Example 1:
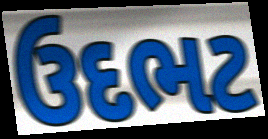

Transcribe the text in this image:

ઉદભટ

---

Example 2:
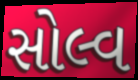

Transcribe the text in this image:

સોલ્વ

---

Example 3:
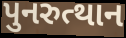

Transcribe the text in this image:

પુનરુત્થાન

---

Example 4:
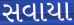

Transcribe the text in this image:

સવાયા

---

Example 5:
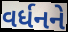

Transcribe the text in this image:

વર્ધનને